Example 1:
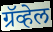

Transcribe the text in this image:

ग्रॅव्हेल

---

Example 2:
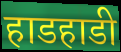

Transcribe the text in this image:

हाडहाडी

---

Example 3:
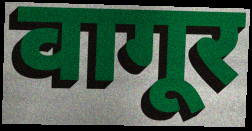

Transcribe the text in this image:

वागूर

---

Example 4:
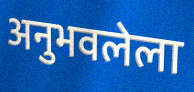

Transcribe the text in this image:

अनुभवलेला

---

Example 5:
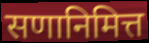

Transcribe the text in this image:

सणानिमित्त